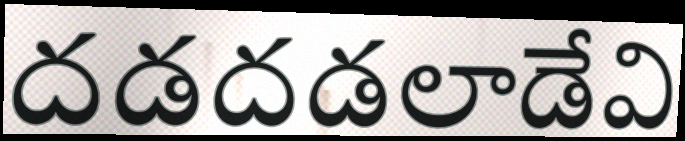
దడదడలాడేవి